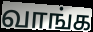
வாங்க